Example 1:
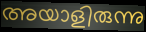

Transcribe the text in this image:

അയാളിരുന്നു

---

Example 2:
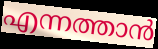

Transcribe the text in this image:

എന്നത്താൻ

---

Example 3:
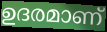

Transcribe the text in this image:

ഉദരമാണ്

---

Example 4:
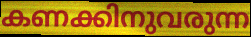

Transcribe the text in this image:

കണക്കിനുവരുന്ന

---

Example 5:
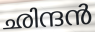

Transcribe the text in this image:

ഛിന്ദൻ